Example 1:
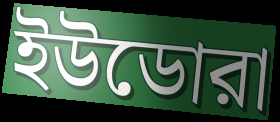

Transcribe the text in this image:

ইউডোরা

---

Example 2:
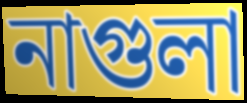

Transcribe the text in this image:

নাগুলা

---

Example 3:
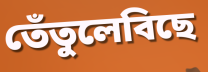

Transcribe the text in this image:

তেঁতুলেবিছে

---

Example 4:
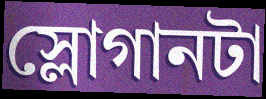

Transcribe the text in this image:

স্লোগানটা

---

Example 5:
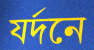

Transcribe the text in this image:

যর্দনে